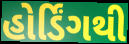
હોર્ડિંગથી